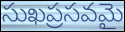
సుఖప్రసవమై